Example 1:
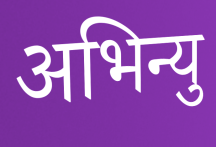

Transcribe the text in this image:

अभिन्यु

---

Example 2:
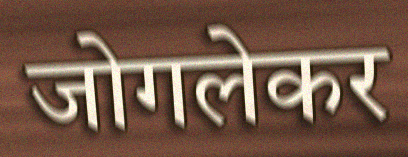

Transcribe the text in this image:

जोगलेकर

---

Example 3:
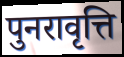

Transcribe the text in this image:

पुनरावृत्ति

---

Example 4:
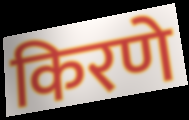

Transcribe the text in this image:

किरणे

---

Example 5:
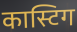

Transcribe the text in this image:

कास्टिग